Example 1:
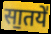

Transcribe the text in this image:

सा॒तये॑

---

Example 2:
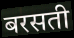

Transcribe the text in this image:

बरसती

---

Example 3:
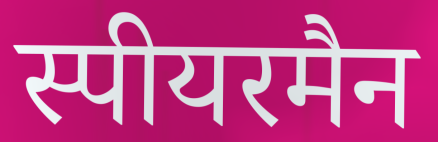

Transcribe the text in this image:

स्पीयरमैन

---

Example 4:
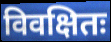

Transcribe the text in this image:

विवक्षितः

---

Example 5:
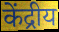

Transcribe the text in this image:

केंद्रीय